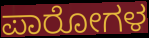
ಪಾರೋಗಳ